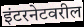
इंटरनेटवरील